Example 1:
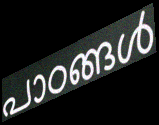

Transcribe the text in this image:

പാഠങ്ങൾ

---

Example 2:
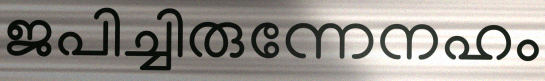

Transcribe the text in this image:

ജപിച്ചിരുന്നേനഹം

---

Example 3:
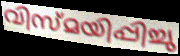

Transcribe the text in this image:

വിസ്മയിപ്പിച്ചു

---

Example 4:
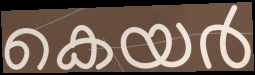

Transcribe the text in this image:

കെയർ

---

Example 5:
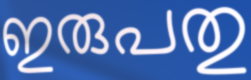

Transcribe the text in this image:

ഇരുപതു